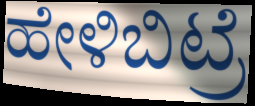
ಹೇಳಿಬಿಟ್ರೆ